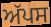
ਅੱਪਸ